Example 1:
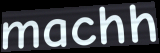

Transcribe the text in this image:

machh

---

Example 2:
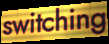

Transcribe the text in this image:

switching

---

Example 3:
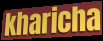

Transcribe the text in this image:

kharicha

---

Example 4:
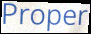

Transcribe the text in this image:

Proper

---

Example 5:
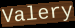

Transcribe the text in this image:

Valery